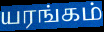
யரங்கம்